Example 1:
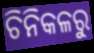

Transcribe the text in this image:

ଚିନିକଳରୁ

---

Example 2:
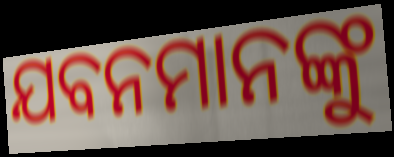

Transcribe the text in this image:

ଯବନମାନଙ୍କୁ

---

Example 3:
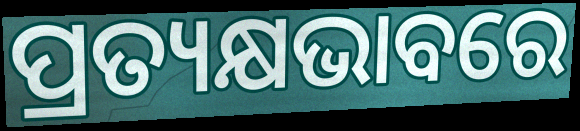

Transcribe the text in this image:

ପ୍ରତ୍ୟକ୍ଷଭାବରେ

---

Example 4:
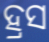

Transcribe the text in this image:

ହ୍ରସ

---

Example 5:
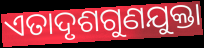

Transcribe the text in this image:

ଏତାଦୃଶଗୁଣଯୁକ୍ତା